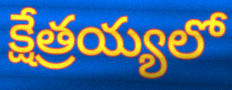
క్షేత్రయ్యలో